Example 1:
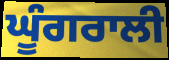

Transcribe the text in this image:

ਘੂੰਗਰਾਲੀ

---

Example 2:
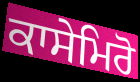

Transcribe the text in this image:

ਕਾਸੇਮਿਰੋ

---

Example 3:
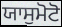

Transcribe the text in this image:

ਯਾਸੁਮੋਟੋ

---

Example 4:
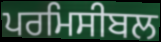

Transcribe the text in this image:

ਪਰਮਿਸੀਬਲ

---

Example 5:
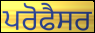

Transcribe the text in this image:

ਪਰੋਫੈਸਰ